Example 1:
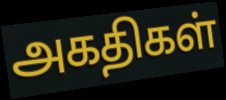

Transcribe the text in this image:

அகதிகள்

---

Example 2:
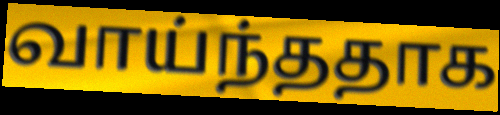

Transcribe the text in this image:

வாய்ந்ததாக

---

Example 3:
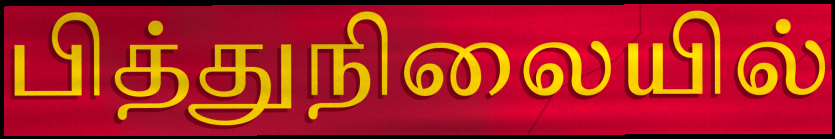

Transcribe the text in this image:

பித்துநிலையில்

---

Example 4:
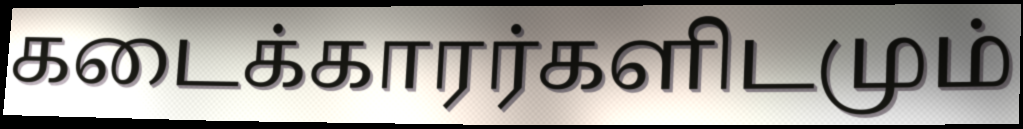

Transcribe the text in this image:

கடைக்காரர்களிடமும்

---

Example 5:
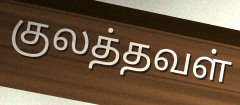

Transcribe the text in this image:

குலத்தவள்